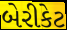
બેરીકેટ